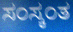
ಸಂಸ್ಕಂತ